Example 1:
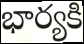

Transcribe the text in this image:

భార్యకి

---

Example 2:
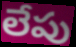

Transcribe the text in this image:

లేపు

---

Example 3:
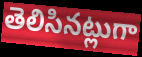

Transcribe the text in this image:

తెలిసినట్లుగా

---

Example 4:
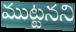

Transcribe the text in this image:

ముట్టనని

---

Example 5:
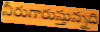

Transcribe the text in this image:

నీరుగారుస్తున్నది